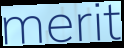
merit